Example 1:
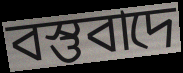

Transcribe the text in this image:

বস্তুবাদে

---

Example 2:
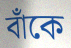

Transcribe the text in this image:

বাঁকে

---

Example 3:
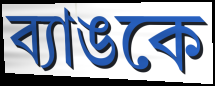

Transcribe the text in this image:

ব্যাঙকে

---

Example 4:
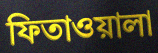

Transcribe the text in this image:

ফিতাওয়ালা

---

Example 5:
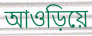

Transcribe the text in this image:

আওড়িয়ে